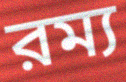
রম্য